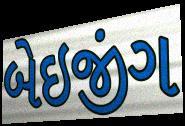
બેઇજીંગ